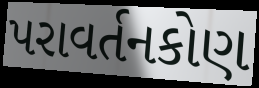
પરાવર્તનકોણ